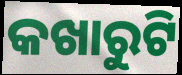
କଖାରୁଟି